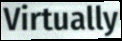
Virtually